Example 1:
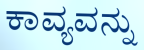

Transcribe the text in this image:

ಕಾವ್ಯವನ್ನು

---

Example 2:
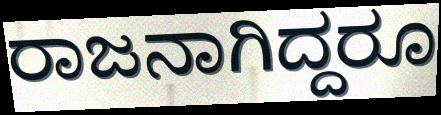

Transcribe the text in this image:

ರಾಜನಾಗಿದ್ದರೂ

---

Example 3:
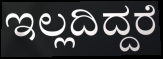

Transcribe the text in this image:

ಇಲ್ಲದಿದ್ದರೆ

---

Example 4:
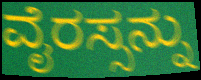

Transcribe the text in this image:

ವೈರಸ್ಸನ್ನು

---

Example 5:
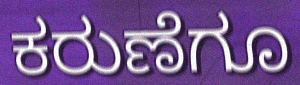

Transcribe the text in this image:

ಕರುಣೆಗೂ